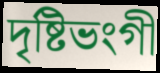
দৃষ্টিভংগী